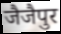
जैजैपुर